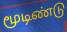
மூடிண்டு